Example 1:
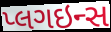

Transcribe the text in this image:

પ્લગઇન્સ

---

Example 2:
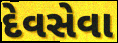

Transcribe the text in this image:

દેવસેવા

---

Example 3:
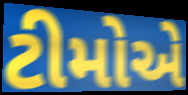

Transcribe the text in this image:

ટીમોએ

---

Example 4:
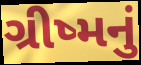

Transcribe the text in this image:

ગ્રીષ્મનું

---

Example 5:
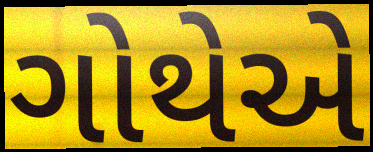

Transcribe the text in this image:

ગોથેએ